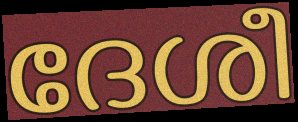
ദേശീ